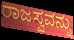
ರಾಜಸ್ವವನ್ನು